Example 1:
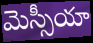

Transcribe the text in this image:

మెస్సీయా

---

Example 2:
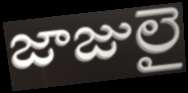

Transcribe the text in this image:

జాజులై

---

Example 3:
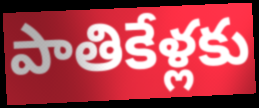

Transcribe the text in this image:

పాతికేళ్లకు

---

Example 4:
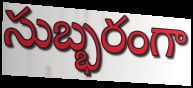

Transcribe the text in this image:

సుబ్భరంగా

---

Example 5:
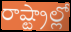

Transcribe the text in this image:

రాష్ట్రాల్లో